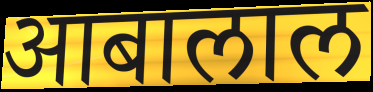
आबालाल